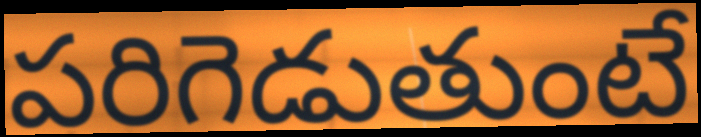
పరిగెడుతుంటే